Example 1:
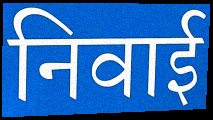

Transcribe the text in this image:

निवाई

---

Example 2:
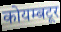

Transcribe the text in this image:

कोयम्‍बटूर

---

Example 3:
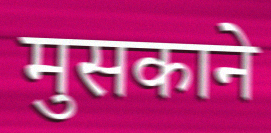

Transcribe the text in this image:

मुसकाने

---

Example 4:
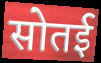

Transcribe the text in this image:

सोतई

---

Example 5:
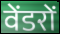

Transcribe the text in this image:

वेंडरों